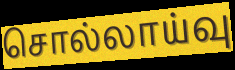
சொல்லாய்வு